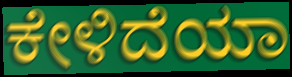
ಕೇಳಿದೆಯಾ